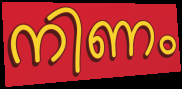
നിണം